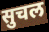
सुचल